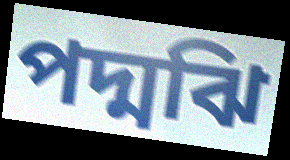
পদ্মঝি